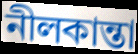
নীলকান্তা